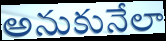
అనుకునేలా